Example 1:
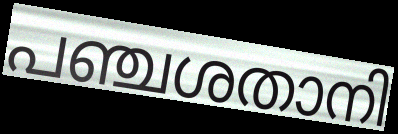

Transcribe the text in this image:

പഞ്ചശതാനി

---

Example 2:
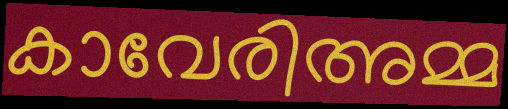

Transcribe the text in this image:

കാവേരിഅമ്മ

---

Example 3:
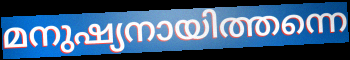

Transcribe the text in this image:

മനുഷ്യനായിത്തന്നെ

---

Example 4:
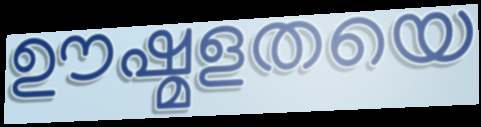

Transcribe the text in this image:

ഊഷ്മളതയെ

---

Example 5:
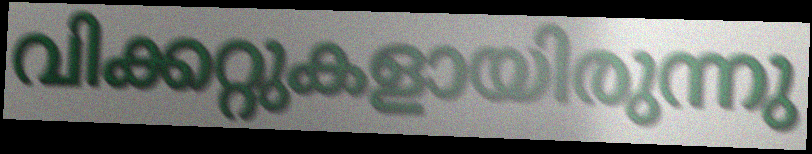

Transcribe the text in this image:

വിക്കറ്റുകളായിരുന്നു